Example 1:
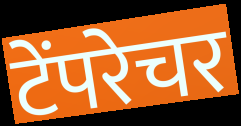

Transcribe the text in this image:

टेंपरेचर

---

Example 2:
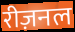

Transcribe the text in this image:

रीज़नल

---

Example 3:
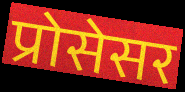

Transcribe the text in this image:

प्रोसेसर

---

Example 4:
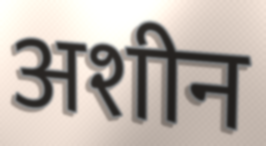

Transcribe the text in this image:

अशीन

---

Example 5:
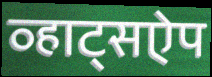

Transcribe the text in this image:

व्‍हाट्सऐप